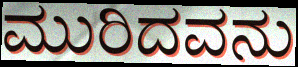
ಮುರಿದವನು